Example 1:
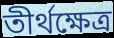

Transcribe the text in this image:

তীর্থক্ষেত্র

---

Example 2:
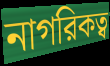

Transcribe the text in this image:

নাগরিকত্ব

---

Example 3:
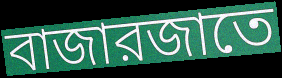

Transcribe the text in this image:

বাজারজাতে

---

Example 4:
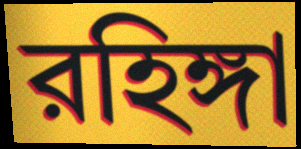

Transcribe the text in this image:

রহিঙ্গা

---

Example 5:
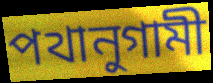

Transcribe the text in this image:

পথানুগামী